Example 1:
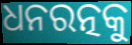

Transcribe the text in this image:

ଧନରତ୍ନକୁ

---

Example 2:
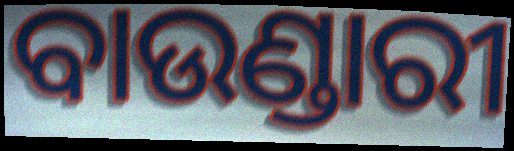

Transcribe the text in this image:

ବାଉଣ୍ଡାରୀ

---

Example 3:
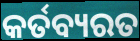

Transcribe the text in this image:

କର୍ତବ୍ୟରତ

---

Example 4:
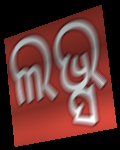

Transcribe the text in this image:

ଲଭ୍ସ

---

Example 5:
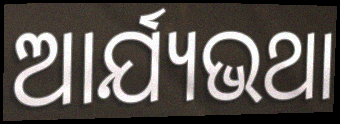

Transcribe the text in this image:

ଆର୍ଯ୍ୟଭଥା